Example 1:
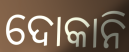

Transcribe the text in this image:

ଦୋକାନି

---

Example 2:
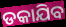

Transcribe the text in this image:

ଡକାଯିବ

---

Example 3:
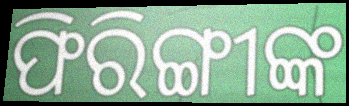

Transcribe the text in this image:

ଫିରିଙ୍ଗୀଙ୍କ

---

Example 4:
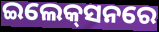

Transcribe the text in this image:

ଇଲେକ୍‍ସନରେ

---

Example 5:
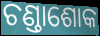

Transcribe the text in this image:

ଚଣ୍ଡାଶୋକ